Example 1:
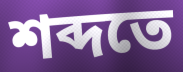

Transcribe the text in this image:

শব্দতে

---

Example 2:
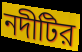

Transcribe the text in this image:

নদীটির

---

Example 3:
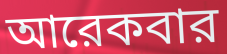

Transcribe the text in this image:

আরেকবার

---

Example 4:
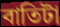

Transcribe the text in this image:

বাতিটা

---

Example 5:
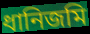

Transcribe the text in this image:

ধানিজমি